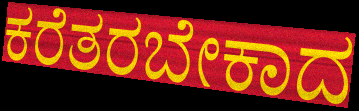
ಕರೆತರಬೇಕಾದ